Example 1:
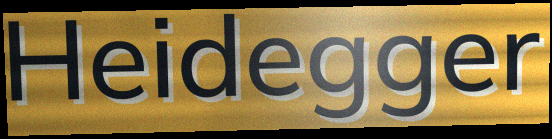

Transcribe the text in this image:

Heidegger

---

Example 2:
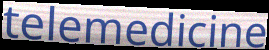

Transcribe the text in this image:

telemedicine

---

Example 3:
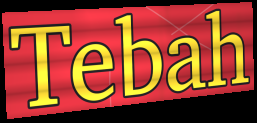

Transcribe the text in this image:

Tebah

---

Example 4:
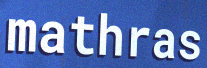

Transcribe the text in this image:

mathras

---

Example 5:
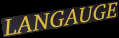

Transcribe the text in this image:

LANGAUGE